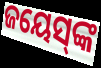
ଜୟେସ୍‌ଙ୍କ